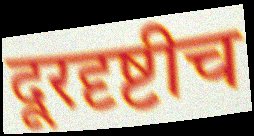
दूरदृष्टीच